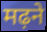
मढ़ने